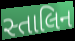
સ્તાલિન